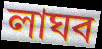
লাঘব